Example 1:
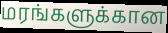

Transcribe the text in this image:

மரங்களுக்கான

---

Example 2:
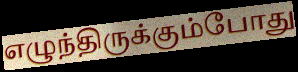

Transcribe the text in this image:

எழுந்திருக்கும்போது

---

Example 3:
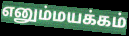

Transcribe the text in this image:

எனும்மயக்கம்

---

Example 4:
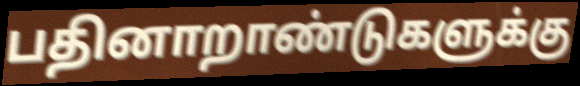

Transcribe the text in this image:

பதினாறாண்டுகளுக்கு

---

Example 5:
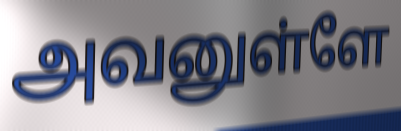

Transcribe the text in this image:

அவனுள்ளே